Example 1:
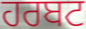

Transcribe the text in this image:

ਹਰਬਟ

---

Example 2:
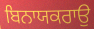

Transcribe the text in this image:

ਬਿਨਾਯਕਰਾਉ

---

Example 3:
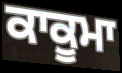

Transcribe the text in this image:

ਕਾਕੂਮਾ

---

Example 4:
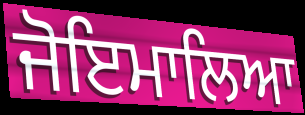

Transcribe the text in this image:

ਜੋਇਮਾਲਿਆ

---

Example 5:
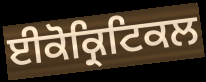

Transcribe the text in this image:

ਈਕੋਕ੍ਰਿਟਿਕਲ